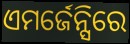
ଏମର୍ଜେନ୍ସିରେ